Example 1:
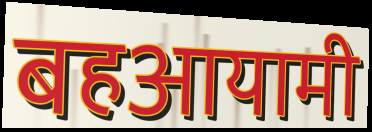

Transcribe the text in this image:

बहआयामी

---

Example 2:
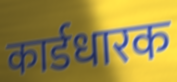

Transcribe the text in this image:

कार्डधारक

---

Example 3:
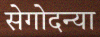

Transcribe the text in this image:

सेगोदन्या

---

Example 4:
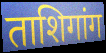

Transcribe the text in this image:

ताशिगांग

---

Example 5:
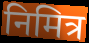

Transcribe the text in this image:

निमित्र